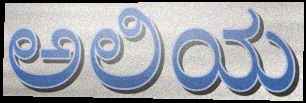
ಅಲಿಯ